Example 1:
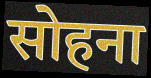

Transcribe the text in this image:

सोहना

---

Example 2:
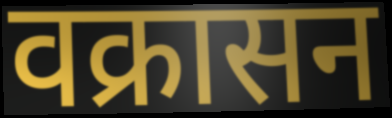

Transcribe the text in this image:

वक्रासन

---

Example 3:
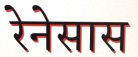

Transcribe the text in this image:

रेनेसास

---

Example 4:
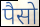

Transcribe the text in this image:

पैसो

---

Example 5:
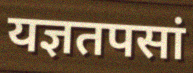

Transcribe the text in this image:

यज्ञतपसां